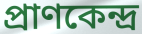
প্ৰাণকেন্দ্ৰ